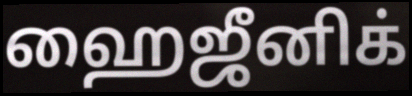
ஹைஜீனிக்